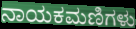
ನಾಯಕಮಣಿಗಳು